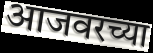
आजवरच्या